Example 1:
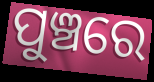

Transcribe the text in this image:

ପୁଞ୍ଚରେ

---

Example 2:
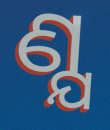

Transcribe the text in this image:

ଣ୍ଯ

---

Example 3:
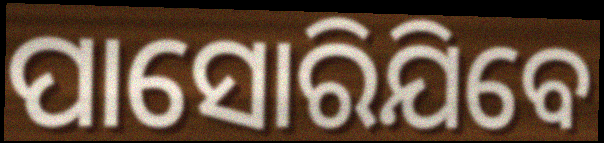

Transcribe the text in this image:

ପାସୋରିଯିବେ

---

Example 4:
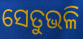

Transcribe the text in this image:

ସେତୁଭଳି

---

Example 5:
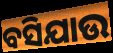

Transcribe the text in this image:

ବସିଯାଉ